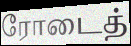
ரோடைத்